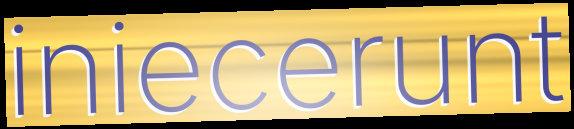
iniecerunt